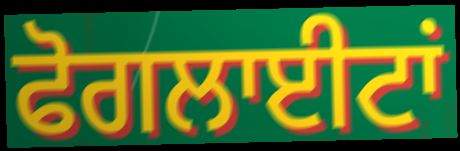
ਫੋਗਲਾਈਟਾਂ